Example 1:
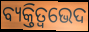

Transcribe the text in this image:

ବ୍ୟକ୍ତିତ୍ୱଭେଦ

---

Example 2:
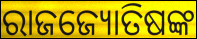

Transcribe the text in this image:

ରାଜଜ୍ୟୋତିଷଙ୍କ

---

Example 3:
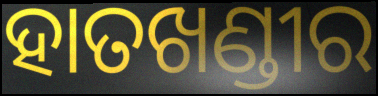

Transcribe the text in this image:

ହାତଖଣ୍ଡୀର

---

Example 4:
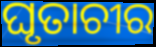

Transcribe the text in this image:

ଘୃତାଚୀର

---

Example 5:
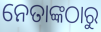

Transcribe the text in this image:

ନେତାଙ୍କଠାରୁ